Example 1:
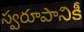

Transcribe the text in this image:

స్వరూపానికీ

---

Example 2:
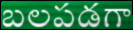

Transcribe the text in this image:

బలపడగా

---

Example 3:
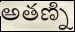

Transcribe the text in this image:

అతణ్ని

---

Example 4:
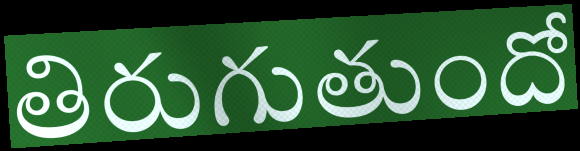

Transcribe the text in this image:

తిరుగుతుందో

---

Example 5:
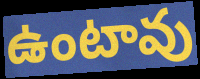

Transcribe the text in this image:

ఉంటావు